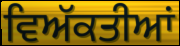
ਵਿਅੱਕਤੀਆਂ